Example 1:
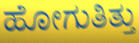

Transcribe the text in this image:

ಹೋಗುತಿತ್ತು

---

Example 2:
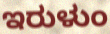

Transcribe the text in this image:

ಇರುಳುಂ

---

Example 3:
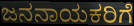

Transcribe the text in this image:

ಜನನಾಯಕರಿಗೆ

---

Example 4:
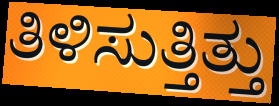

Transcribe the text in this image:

ತಿಳಿಸುತ್ತಿತ್ತು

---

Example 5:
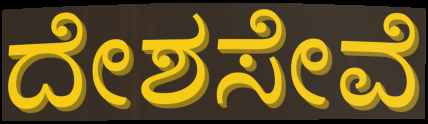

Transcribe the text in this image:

ದೇಶಸೇವೆ